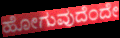
ಹೋಗುವುದೆಂದೇ